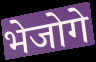
भेजोगे